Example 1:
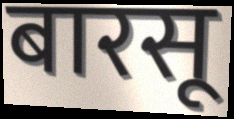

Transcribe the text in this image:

बारसू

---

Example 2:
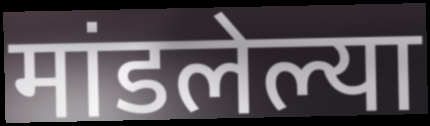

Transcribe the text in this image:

मांडलेल्या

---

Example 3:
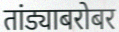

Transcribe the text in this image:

तांड्याबरोबर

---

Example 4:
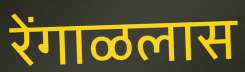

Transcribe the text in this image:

रेंगाळलास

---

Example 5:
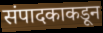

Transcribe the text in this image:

संपादकाकडून